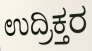
ಉದ್ರಿಕ್ತರ